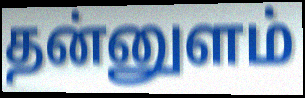
தன்னுளம்